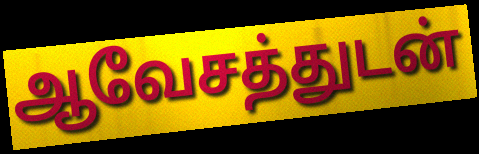
ஆவேசத்துடன்